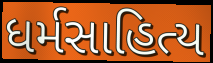
ધર્મસાહિત્ય